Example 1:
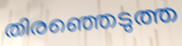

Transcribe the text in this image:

തിരഞ്ഞെടുത്ത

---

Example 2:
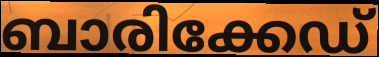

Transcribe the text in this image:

ബാരിക്കേഡ്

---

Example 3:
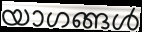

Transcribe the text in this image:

യാഗങ്ങൾ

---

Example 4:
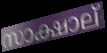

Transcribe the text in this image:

സാക്ഷാല്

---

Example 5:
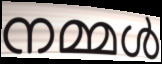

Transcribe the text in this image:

നമ്മൾ